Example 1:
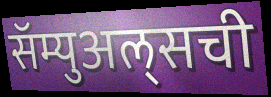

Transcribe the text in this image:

सॅम्युअल्सची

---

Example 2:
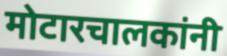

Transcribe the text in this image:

मोटारचालकांनी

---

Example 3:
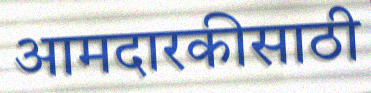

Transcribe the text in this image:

आमदारकीसाठी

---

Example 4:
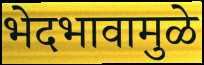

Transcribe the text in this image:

भेदभावामुळे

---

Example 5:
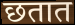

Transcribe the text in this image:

छतात